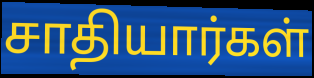
சாதியார்கள்